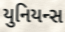
યુનિયન્સ